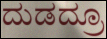
ದುಡದ್ರೂ